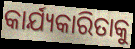
କାର୍ଯ୍ୟକାରିତାକୁ